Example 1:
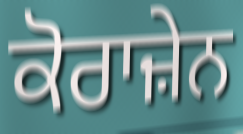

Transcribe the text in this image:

ਕੋਰਾਜ਼ੇਨ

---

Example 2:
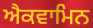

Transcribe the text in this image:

ਐਕਵਾਮਿਨ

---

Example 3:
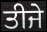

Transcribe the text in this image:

ਤੀਜੇ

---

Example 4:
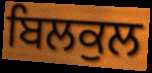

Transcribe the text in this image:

ਬਿਲਕੁਲ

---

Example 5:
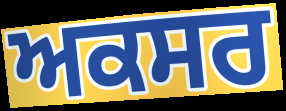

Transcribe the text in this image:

ਅਕਸਰ